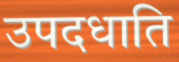
उपदधाति